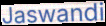
Jaswandi